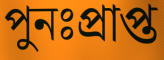
পুনঃপ্রাপ্ত